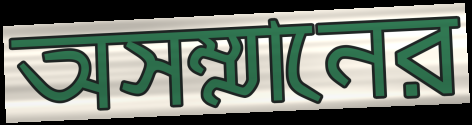
অসম্মানের